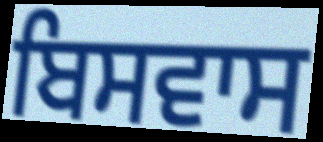
ਬਿਸਵਾਸ